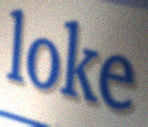
loke